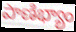
పాణిభ్యాం